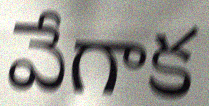
వేగాక